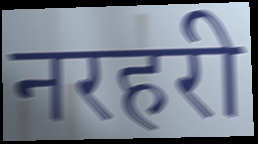
नरहरी